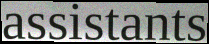
assistants